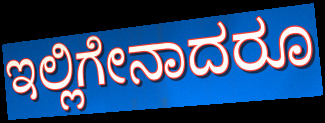
ಇಲ್ಲಿಗೇನಾದರೂ